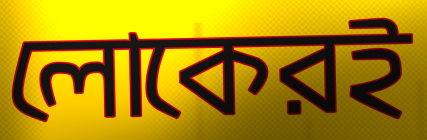
লোকেরই